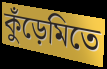
কুঁড়েমিতে